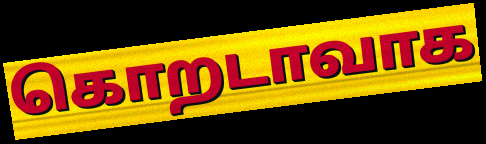
கொறடாவாக